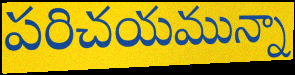
పరిచయమున్నా